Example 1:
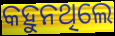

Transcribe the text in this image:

କହୁନଥିଲେ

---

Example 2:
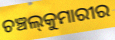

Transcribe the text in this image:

ଚଞ୍ଚଲ୍‍କୁମାରୀର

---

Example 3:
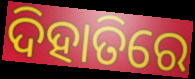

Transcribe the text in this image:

ଦିହାତିରେ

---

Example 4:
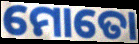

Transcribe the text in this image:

ମୋତୋ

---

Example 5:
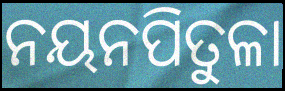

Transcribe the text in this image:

ନୟନପିତୁଳା